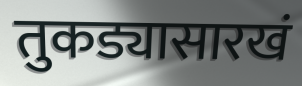
तुकड्यासारखं